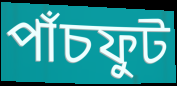
পাঁচফুট